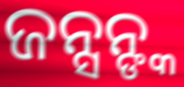
ଜନ୍ସନ୍ଙ୍କ